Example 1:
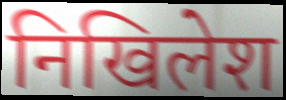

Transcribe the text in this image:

निखिलेश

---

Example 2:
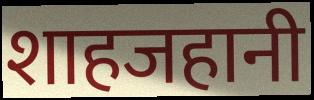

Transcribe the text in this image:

शाहजहानी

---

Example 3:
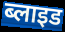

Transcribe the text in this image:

ब्लाइड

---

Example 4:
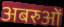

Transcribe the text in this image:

अबरुओं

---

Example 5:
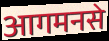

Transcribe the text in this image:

आगमनसे